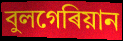
বুলগেৰিয়ান